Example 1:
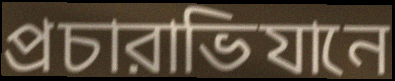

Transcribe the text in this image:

প্রচারাভিযানে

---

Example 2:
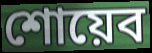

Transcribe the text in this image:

শোয়েব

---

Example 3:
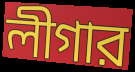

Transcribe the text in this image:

লীগার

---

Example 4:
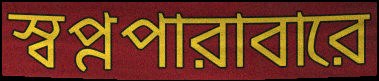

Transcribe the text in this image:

স্বপ্নপারাবারে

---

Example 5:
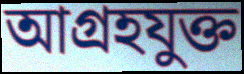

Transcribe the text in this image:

আগ্রহযুক্ত